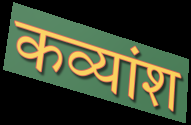
कव्यांश